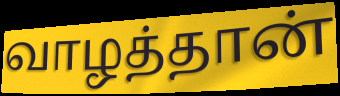
வாழத்தான்